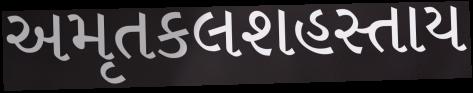
અમૃતકલશહસ્તાય